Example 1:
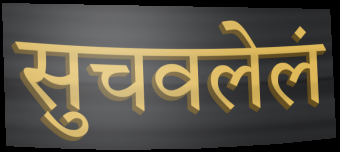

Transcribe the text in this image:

सुचवलेलं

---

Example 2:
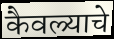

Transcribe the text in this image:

कैवल्याचे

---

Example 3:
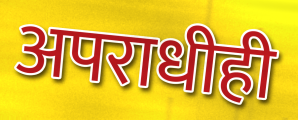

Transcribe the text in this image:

अपराधीही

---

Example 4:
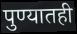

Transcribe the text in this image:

पुण्यातही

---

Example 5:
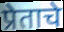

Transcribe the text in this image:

प्रेताचे